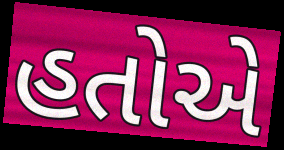
હતોએ